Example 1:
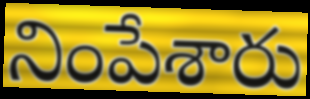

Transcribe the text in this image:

నింపేశారు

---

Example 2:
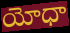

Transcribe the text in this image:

యోధా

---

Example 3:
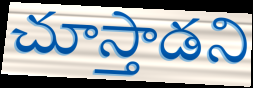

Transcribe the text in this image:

చూస్తాడని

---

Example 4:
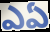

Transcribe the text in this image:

ఎఏ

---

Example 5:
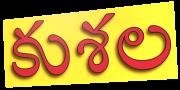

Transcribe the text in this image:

కుశల